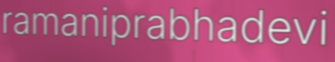
ramaniprabhadevi